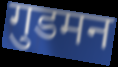
गुडमन